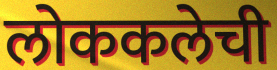
लोककलेची